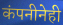
कंपनीनेही